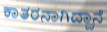
ಕಾತರನಾಗಿದ್ದಾನೆ